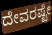
ದೇವರಷ್ಟೇ